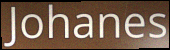
Johanes